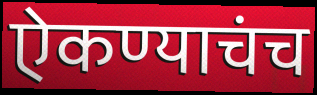
ऐकण्याचंच